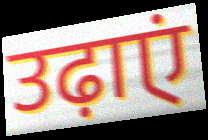
उढ़ाएं